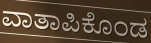
ವಾತಾಪಿಕೊಂಡ